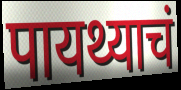
पायथ्याचं